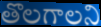
తొలగాలని